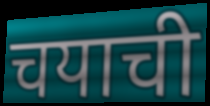
चयाची